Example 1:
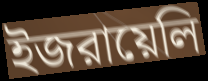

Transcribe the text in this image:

ইজরায়েলি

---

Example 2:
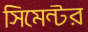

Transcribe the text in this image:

সিমেন্টর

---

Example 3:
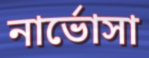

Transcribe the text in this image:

নার্ভোসা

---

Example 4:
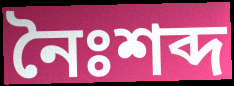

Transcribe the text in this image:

নৈঃশব্দ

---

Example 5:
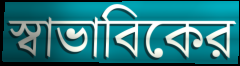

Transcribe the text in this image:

স্বাভাবিকের